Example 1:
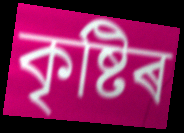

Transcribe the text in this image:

কৃষ্টিৰ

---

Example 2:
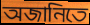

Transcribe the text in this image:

অজানিতে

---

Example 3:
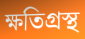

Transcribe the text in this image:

ক্ষতিগ্ৰস্থ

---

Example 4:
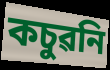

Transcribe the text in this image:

কচুৱনি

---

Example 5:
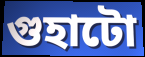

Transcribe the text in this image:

গুহাটো